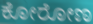
ಕೋರೋಣ